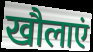
खौलाएं